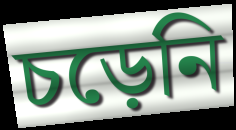
চড়েনি